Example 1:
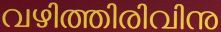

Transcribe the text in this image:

വഴിത്തിരിവിനു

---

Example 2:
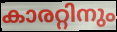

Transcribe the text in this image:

കാരറ്റിനും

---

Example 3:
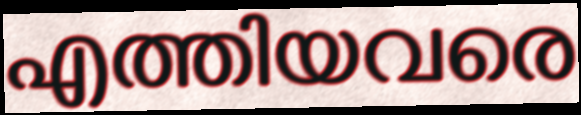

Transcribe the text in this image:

എത്തിയവരെ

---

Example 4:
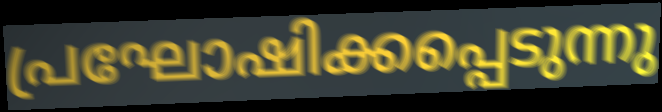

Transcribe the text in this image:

പ്രഘോഷിക്കപ്പെടുന്നു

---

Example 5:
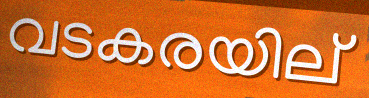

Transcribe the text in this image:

വടകരയില്